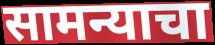
सामन्याचा